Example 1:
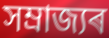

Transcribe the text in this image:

সম্ৰাজ্যৰ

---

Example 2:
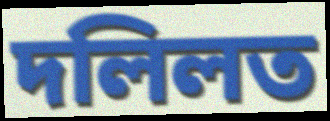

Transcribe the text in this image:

দলিলত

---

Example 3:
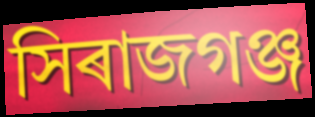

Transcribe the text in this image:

সিৰাজগঞ্জ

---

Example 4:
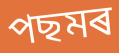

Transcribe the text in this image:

পছমৰ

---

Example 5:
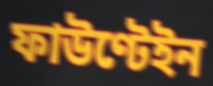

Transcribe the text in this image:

ফাউণ্টেইন